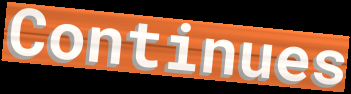
Continues